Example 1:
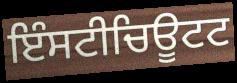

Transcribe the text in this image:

ਇੰਸਟੀਚਿਊਟਟ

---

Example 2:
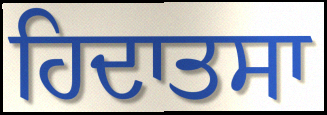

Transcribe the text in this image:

ਹਿਦਾਤਸਾ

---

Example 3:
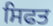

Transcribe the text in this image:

ਸਿਫਤ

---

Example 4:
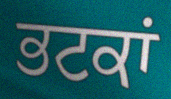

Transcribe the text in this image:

ਭਟਕਾਂ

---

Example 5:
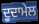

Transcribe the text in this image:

ਦੂਦਾਮੇਲ